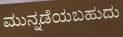
ಮುನ್ನಡೆಯಬಹುದು